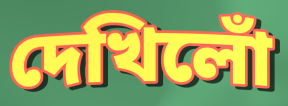
দেখিলোঁ